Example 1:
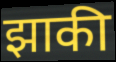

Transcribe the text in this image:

झाकी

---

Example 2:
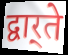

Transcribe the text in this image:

द्वार्ते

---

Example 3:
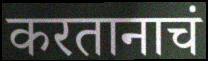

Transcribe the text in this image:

करतानाचं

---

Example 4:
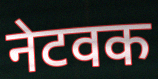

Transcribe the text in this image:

नेटवक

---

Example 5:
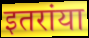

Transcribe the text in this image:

इतरांया